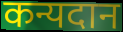
कन्यदान